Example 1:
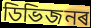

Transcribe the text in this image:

ডিভিজনৰ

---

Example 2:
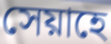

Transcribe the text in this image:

সেয়াহে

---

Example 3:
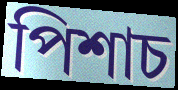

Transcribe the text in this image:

পিশাচ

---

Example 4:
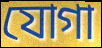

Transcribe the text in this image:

যোগা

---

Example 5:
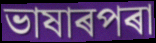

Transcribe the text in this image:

ভাষাৰপৰা